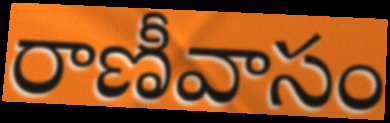
రాణీవాసం